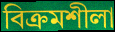
বিক্রমশীলা